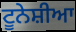
ਟੂਨੇਸ਼ੀਆ